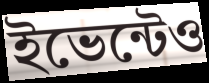
ইভেন্টেও